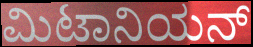
ಮಿಟಾನಿಯನ್